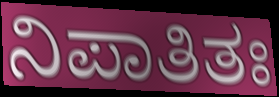
ನಿಪಾತಿತಃ